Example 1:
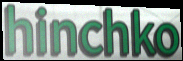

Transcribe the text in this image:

hinchko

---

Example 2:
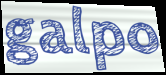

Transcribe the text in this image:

galpo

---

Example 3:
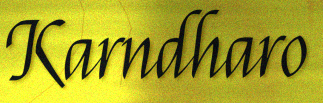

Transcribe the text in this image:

Karndharo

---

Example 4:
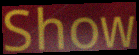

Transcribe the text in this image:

Show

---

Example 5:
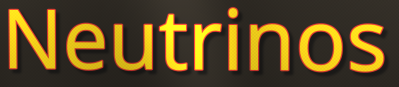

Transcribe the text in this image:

Neutrinos